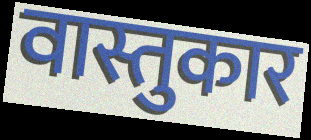
वास्तुकार